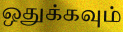
ஒதுக்கவும்